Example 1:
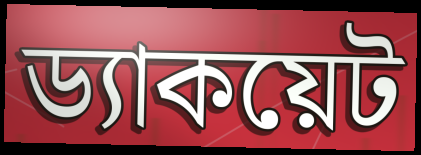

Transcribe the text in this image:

ড্যাকয়েট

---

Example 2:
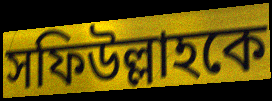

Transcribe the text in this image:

সফিউল্লাহকে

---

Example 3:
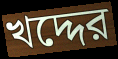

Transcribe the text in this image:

খদ্দের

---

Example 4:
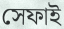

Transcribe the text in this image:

সেফাই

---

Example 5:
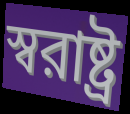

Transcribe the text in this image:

স্বরাষ্ট্র